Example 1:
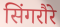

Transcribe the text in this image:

सिंगरौरे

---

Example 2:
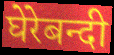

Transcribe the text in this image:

घेरेबन्दी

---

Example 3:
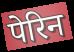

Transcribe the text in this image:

पेरिन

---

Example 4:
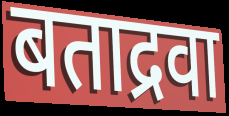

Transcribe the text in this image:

बताद्रवा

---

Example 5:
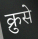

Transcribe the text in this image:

क्रुसे